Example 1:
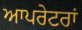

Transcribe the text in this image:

ਆਪਰੇਟਰਾਂ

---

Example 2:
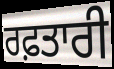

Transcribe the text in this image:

ਰਫ਼ਤਾਰੀ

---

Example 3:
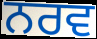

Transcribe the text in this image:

ਨਰਵ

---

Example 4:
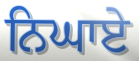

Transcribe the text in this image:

ਨਿਘਾਏ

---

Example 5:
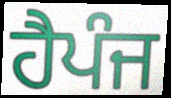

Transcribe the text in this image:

ਹੈਪੰਜ